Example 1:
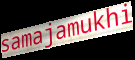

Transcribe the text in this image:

samajamukhi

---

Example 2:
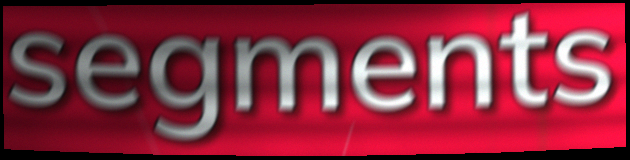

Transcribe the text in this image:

segments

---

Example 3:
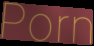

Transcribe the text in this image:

Porn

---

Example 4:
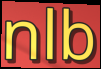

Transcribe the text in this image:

nlb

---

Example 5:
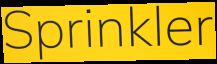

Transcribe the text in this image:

Sprinkler